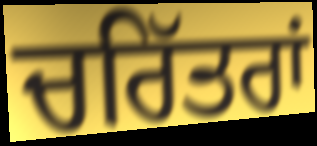
ਚਰਿੱਤਰਾਂ